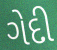
ગેદી